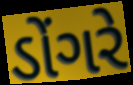
ડોંગરે